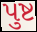
પુષ્ટ